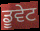
ਡੂਵੇਟ